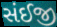
સંઈજી